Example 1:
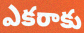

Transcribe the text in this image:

ఎకరాకు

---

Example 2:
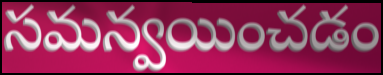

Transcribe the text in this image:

సమన్వయించడం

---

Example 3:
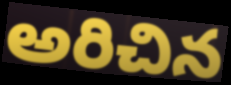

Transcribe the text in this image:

అరిచిన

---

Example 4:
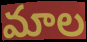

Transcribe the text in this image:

మాల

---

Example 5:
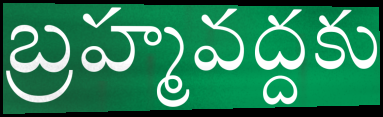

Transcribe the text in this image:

బ్రహ్మవద్దకు